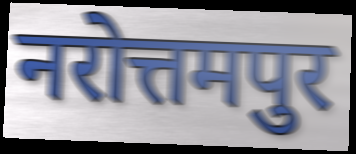
नरोत्तमपुर